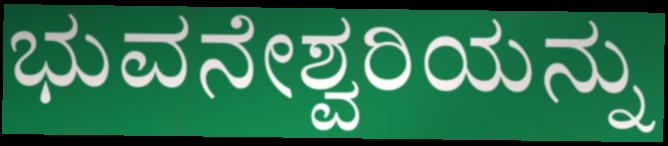
ಭುವನೇಶ್ವರಿಯನ್ನು